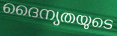
ദൈന്യതയുടെ